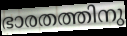
ഭാരതത്തിനു